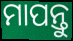
ମାପନ୍ତୁ